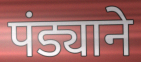
पंड्याने